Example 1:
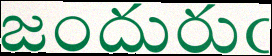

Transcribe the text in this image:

జందురుఁ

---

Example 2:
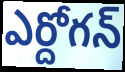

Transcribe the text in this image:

ఎర్దోగన్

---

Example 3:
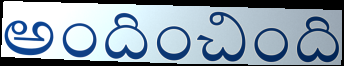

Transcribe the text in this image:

అందించింది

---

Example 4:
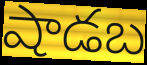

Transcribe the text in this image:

షాడబ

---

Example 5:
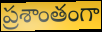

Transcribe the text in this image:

ప్రశాంతంగా